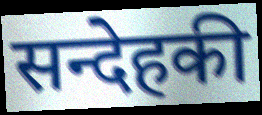
सन्देहकी